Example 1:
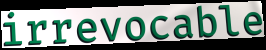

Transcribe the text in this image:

irrevocable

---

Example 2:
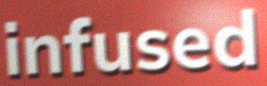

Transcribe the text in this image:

infused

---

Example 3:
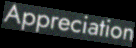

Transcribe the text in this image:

Appreciation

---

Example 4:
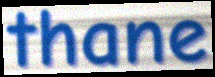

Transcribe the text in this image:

thane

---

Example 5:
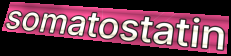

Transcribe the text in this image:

somatostatin